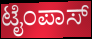
ಟೈಂಪಾಸ್